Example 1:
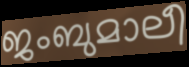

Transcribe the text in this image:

ജംബുമാലീ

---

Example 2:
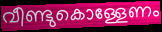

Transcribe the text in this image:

വീണ്ടുകൊള്ളേണം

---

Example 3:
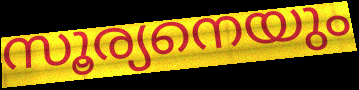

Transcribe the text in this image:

സൂര്യനെയും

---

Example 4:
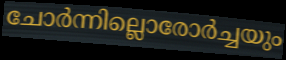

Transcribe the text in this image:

ചോർന്നില്ലൊരോർച്ചയും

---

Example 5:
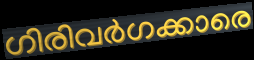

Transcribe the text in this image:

ഗിരിവർഗക്കാരെ